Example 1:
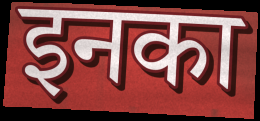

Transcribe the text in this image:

इनका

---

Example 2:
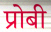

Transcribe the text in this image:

प्रोबी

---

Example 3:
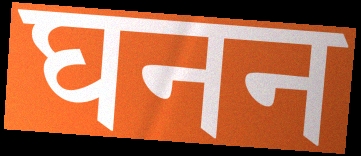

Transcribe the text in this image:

घनन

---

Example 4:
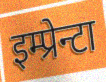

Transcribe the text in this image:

इम्प्रेन्टा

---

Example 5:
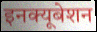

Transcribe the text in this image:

इनक्यूबेशन